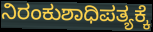
ನಿರಂಕುಶಾಧಿಪತ್ಯಕ್ಕೆ